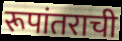
रूपांतराची